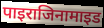
पाइराजिनामाइड